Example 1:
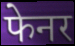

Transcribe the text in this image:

फेनर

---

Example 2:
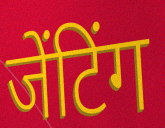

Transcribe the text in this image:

जेंटिंग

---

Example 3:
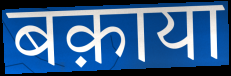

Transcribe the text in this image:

बक़ाया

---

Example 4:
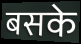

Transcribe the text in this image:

बसके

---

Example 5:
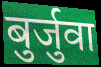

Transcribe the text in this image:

बुर्जुवा